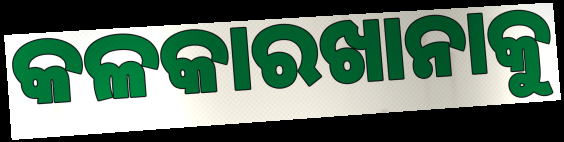
କଳକାରଖାନାକୁ